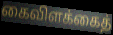
கைவிளக்கைத்